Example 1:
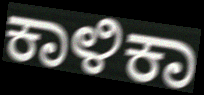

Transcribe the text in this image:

ಕಾಳಿಕಾ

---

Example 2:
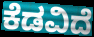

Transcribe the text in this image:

ಕೆಡವಿದೆ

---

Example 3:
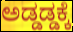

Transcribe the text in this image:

ಅಡ್ಡಡ್ಡಕ್ಕೆ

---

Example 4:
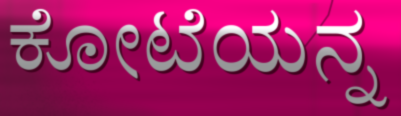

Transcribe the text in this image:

ಕೋಟೆಯನ್ನ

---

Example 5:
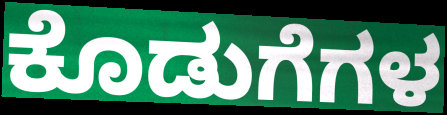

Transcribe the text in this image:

ಕೊಡುಗೆಗಳ